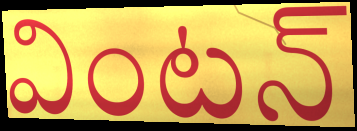
వింటన్